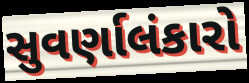
સુવર્ણાલંકારો